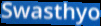
Swasthyo